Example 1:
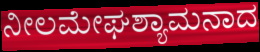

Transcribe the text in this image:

ನೀಲಮೇಘಶ್ಯಾಮನಾದ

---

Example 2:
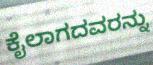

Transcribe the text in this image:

ಕೈಲಾಗದವರನ್ನು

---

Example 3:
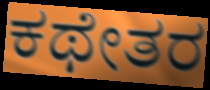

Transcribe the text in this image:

ಕಥೇತರ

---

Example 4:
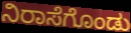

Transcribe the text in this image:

ನಿರಾಸೆಗೊಂಡು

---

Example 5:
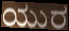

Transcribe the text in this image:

ಯುರ